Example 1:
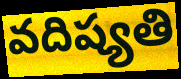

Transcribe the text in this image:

వదిష్యతి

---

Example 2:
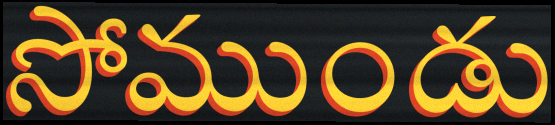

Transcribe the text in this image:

సోముండు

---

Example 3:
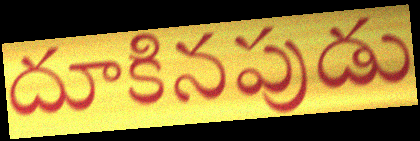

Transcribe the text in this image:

దూకినపుడు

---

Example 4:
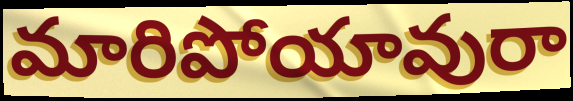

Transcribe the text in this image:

మారిపోయావురా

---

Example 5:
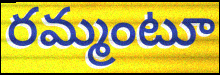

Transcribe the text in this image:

రమ్మంటూ